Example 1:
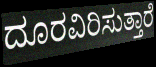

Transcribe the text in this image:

ದೂರವಿರಿಸುತ್ತಾರೆ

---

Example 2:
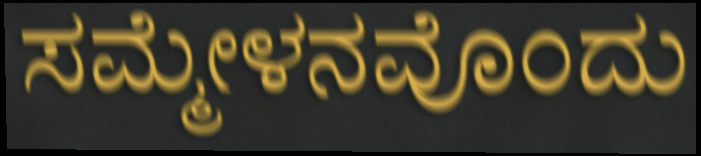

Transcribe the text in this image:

ಸಮ್ಮೇಳನವೊಂದು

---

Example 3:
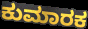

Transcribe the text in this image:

ಕುಮಾರಕ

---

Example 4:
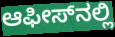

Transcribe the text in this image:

ಆಫೀಸ್‌ನಲ್ಲಿ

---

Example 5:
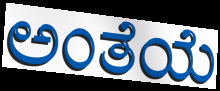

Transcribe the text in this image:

ಅಂತೆಯೆ